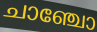
ചാഞ്ചോ